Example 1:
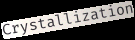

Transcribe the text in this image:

Crystallization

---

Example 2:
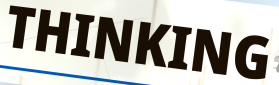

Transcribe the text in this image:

THINKING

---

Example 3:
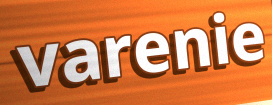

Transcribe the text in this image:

varenie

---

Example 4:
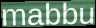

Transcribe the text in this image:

mabbu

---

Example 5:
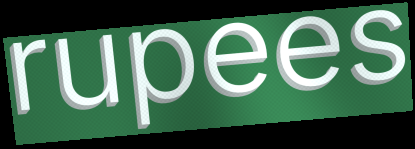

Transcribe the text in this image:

rupees